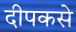
दीपकसे